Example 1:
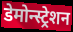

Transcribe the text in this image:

डेमोन्स्ट्रेशन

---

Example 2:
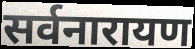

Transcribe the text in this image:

सर्वनारायण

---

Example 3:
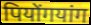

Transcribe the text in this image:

पियोंगयांग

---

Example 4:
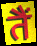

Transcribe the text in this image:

तैं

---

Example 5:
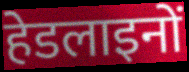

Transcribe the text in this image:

हेडलाइनों